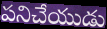
పనిచేయుడు